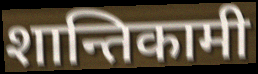
शान्तिकामी